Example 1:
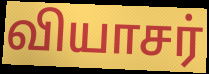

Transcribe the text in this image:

வியாசர்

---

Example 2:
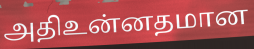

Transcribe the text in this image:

அதிஉன்னதமான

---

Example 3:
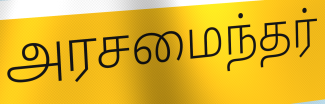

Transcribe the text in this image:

அரசமைந்தர்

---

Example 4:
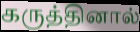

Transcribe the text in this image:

கருத்தினால்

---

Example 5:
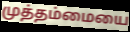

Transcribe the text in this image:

முத்தம்மையை